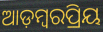
ଆଡ଼ମ୍ବରପ୍ରିୟ